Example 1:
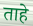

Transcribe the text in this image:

ताहे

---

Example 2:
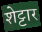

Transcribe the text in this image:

शेट्टार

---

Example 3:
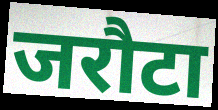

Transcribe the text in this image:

जरौटा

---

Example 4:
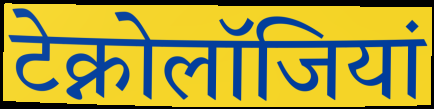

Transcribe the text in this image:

टेक्नोलॉजियां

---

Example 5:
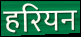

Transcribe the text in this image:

हरियन